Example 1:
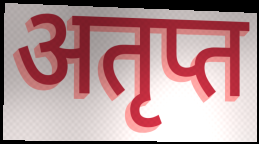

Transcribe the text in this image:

अतृप्त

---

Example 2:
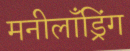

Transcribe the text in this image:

मनीलॉंड्रिंग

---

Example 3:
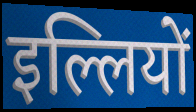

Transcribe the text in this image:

इल्लियों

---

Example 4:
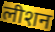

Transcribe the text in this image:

लीश़न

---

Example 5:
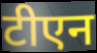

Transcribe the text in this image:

टीएन